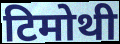
टिमोथी